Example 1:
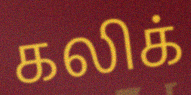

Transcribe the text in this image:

கலிக்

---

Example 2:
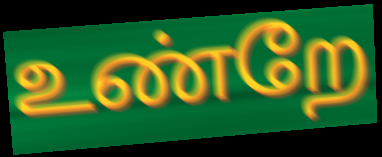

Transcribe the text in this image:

உண்றே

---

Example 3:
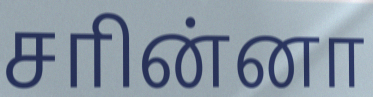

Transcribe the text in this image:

சரின்னா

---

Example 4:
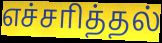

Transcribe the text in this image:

எச்சரித்தல்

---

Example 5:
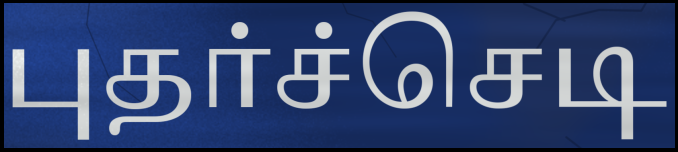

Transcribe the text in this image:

புதர்ச்செடி